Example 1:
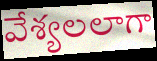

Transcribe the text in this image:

వేశ్యలలాగా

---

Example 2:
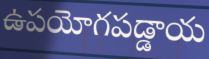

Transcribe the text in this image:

ఉపయోగపడ్డాయ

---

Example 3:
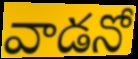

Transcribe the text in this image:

వాడనో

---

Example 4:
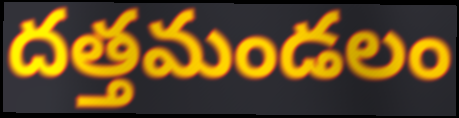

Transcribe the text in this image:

దత్తమండలం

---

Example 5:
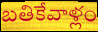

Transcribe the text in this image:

బతికేవాళ్లం